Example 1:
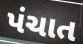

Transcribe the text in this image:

પંચાત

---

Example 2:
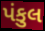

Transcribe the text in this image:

પંકુલ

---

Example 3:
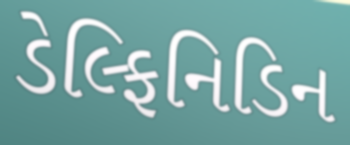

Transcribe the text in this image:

ડેલ્ફિનિડિન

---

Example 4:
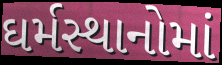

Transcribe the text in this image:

ઘર્મસ્થાનોમાં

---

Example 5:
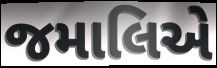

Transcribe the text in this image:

જમાલિએ